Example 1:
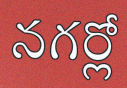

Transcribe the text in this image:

నగర్లో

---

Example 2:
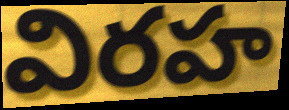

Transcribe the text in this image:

విరహ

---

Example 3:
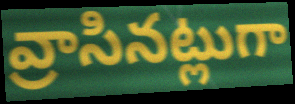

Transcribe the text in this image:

వ్రాసినట్లుగా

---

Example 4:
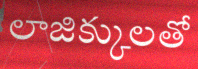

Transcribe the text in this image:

లాజిక్కులతో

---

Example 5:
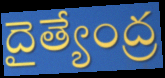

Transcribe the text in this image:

దైత్యేంద్ర